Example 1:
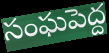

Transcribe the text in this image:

సంఘపెద్ద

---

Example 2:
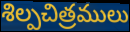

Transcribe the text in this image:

శిల్పచిత్రములు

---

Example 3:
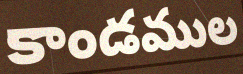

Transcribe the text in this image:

కాండముల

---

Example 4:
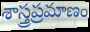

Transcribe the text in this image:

శాస్త్రప్రమాణం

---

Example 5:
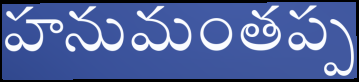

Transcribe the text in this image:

హనుమంతప్ప